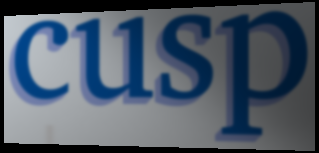
cusp